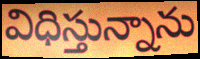
విధిస్తున్నాను